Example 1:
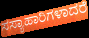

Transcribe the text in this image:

ಸಸ್ಯಾಹಾರಿಗಳಾದರೆ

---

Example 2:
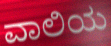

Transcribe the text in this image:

ವಾಲಿಯ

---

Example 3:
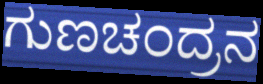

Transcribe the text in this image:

ಗುಣಚಂದ್ರನ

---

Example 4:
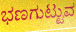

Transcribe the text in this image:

ಭಣಗುಟ್ಟುವ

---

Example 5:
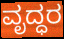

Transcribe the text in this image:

ವೃದ್ಧರ